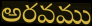
అరవము